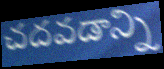
చదవడాన్ని